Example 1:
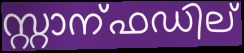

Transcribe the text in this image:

സ്റ്റാന്ഫഡില്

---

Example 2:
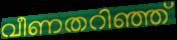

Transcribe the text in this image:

വീണതറിഞ്ഞ്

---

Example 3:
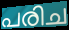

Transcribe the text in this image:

പരിച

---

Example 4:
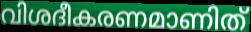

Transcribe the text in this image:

വിശദീകരണമാണിത്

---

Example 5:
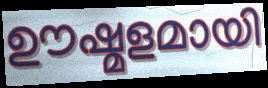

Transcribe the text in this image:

ഊഷ്മളമായി